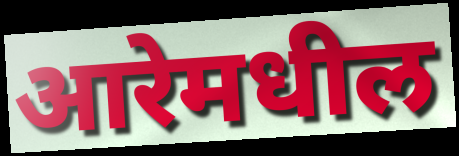
आरेमधील